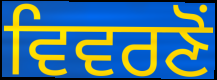
ਵਿਵਰਣੋਂ